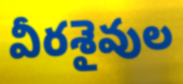
వీరశైవుల